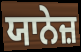
ਯਾਨੇਜ਼